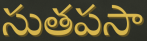
సుతపసా